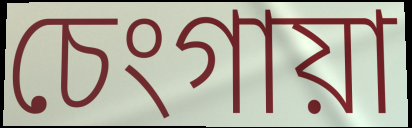
চেংগায়া